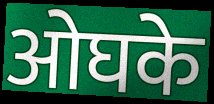
ओघके